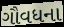
ગૌવધના